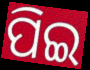
ପିଇ